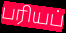
பரியப்